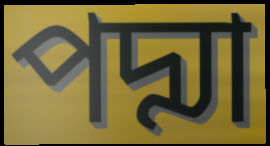
পদ্মা